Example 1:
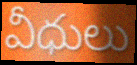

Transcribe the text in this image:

వీధులు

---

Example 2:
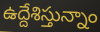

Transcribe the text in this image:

ఉద్దేశిస్తున్నాం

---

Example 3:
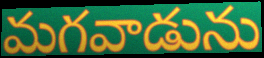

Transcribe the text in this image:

మగవాడును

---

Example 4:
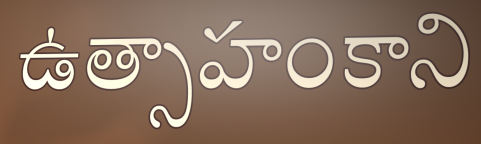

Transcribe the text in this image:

ఉత్సాహంకాని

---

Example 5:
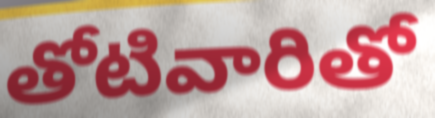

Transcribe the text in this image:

తోటివారితో